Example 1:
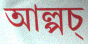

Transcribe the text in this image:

আল্পচ্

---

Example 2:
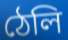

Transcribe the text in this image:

ঠেলি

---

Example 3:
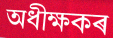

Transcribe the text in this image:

অধীক্ষকৰ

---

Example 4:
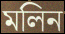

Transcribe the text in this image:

মলিন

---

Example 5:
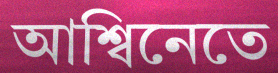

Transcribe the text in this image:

আশ্বিনেতে